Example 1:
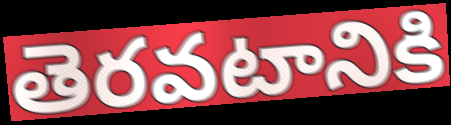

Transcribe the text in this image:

తెరవటానికి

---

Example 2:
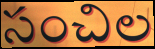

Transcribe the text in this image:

సంచిల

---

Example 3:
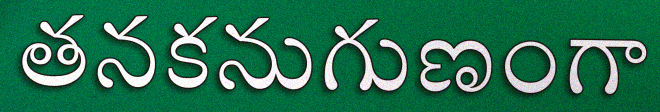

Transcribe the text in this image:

తనకనుగుణంగా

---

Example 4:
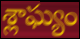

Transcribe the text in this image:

శ్లాఘ్యం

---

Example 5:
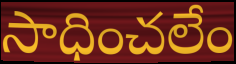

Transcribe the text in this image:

సాధించలేం